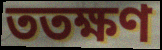
ততক্ষণ